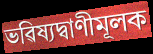
ভৱিষ্যদ্বাণীমূলক